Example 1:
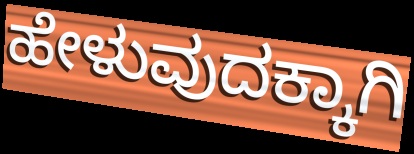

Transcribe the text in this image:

ಹೇಳುವುದಕ್ಕಾಗಿ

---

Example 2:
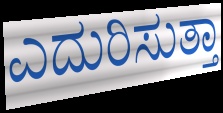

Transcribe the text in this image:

ಎದುರಿಸುತ್ತಾ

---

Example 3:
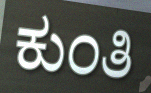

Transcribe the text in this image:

ಕುಂತಿ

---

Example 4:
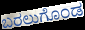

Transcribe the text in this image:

ಬರಲುಗೊಂಡ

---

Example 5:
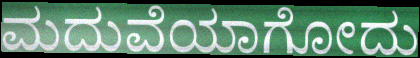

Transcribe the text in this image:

ಮದುವೆಯಾಗೋದು